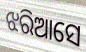
ଝରିଆସେ